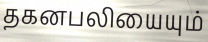
தகனபலியையும்